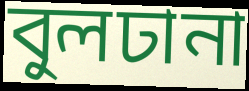
বুলঢানা